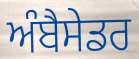
ਅੰਬੈਸੇਡਰ